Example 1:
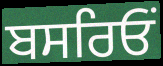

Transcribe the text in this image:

ਬਸਰਿਓਂ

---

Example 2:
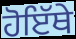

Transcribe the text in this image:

ਹੋਇੱਥੇ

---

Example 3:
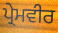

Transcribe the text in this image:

ਪ੍ਰੇਮਵੀਰ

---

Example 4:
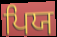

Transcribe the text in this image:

ਪਿਯ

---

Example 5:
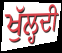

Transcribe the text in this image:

ਖੁੱਲ੍ਹਦੀ